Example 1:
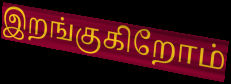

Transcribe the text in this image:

இறங்குகிறோம்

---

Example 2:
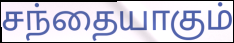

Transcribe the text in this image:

சந்தையாகும்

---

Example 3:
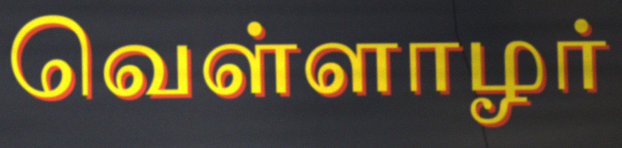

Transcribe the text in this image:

வெள்ளாழர்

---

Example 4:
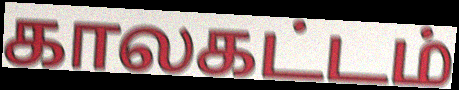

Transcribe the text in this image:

காலகட்டம்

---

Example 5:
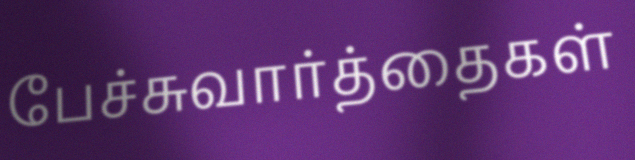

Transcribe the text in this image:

பேச்சுவார்த்தைகள்